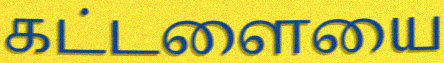
கட்டளையை